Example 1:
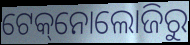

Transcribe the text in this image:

ଟେକ୍‌ନୋଲୋଜିରୁ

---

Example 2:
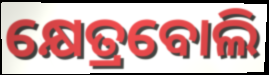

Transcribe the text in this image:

କ୍ଷେତ୍ରବୋଲି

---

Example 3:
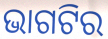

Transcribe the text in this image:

ଭାଗଟିର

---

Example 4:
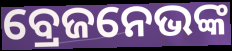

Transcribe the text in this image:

ବ୍ରେଜନେଭଙ୍କ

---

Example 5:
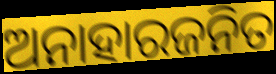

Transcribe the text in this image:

ଅନାହାରଜନିତ